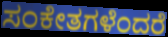
ಸಂಕೇತಗಳೆಂದರೆ